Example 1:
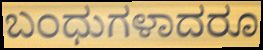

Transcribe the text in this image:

ಬಂಧುಗಳಾದರೂ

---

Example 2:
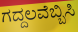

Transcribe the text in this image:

ಗದ್ದಲವೆಬ್ಬಿಸಿ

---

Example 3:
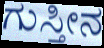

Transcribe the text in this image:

ಗುಸ್ತೀನ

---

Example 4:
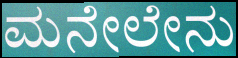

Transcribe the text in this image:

ಮನೇಲೇನು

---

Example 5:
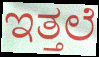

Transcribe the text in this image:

ಇತ್ತಲೆ